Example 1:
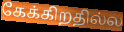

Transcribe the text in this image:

கேக்கிறதில்ல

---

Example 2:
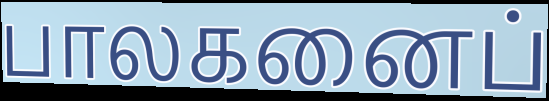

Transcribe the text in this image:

பாலகனைப்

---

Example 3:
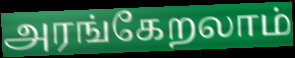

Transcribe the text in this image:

அரங்கேறலாம்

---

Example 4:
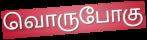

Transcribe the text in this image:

வொருபோகு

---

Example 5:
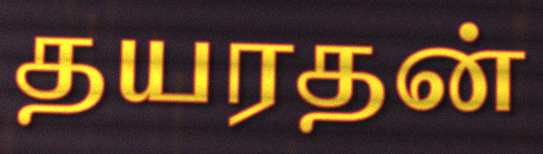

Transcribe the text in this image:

தயரதன்